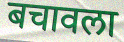
बचावला